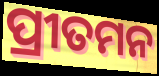
ପ୍ରୀତମନ